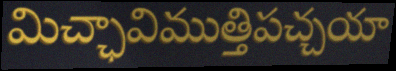
మిచ్ఛావిముత్తిపచ్చయా